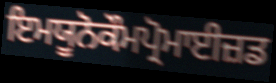
ਇਮਯੂਨੋਕੌਮਪ੍ਰੋਮਾਈਜ਼ਡ